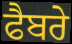
ਫੈਬਰੇ